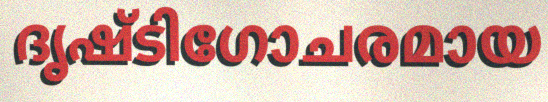
ദൃഷ്ടിഗോചരമായ